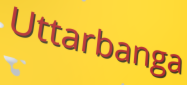
Uttarbanga